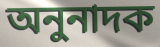
অনুনাদক